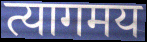
त्यागमय